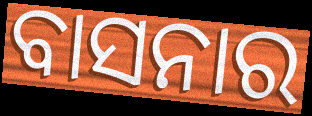
ବାସନାର